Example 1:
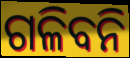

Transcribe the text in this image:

ଗଳିବନି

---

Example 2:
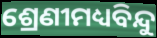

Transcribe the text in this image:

ଶ୍ରେଣୀମଧ୍ୟବିନ୍ଦୁ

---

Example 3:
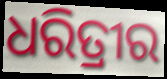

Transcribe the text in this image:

ଧରିତ୍ରୀର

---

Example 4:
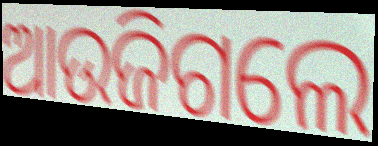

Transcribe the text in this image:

ଆଉଜିଗଲେ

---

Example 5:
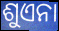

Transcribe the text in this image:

ଶୁଏନା